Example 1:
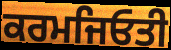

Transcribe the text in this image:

ਕਰਮਜਿਓਤੀ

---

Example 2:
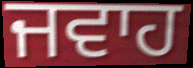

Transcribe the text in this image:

ਜਵਾਹ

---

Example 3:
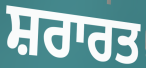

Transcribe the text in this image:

ਸ਼ਰਾਰਤ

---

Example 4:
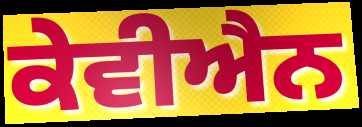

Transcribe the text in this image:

ਕੇਵੀਐਨ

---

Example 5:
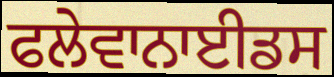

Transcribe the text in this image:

ਫਲੇਵਾਨਾਈਡਸ